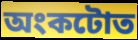
অংকটোত